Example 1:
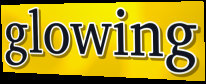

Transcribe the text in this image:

glowing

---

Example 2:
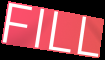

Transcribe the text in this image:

FILL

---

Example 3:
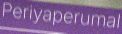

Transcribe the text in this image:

Periyaperumal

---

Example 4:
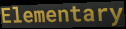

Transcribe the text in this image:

Elementary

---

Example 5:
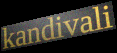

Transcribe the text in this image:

kandivali